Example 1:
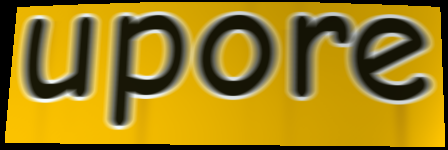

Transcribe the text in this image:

upore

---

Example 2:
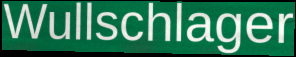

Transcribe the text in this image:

Wullschlager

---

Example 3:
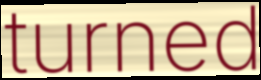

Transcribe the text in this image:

turned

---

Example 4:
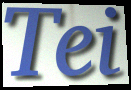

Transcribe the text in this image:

Tei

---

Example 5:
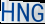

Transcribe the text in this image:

HNG